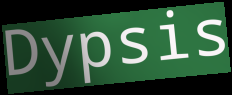
Dypsis